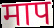
माप